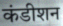
कंडीशन